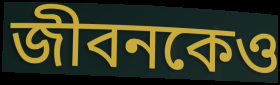
জীবনকেও